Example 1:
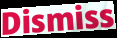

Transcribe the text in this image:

Dismiss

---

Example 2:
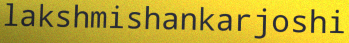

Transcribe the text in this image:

lakshmishankarjoshi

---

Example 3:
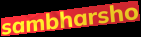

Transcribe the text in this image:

sambharsho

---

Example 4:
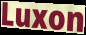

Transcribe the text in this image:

Luxon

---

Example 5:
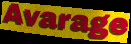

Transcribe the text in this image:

Avarage